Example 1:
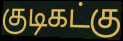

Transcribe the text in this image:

குடிகட்கு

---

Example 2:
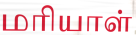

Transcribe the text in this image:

மரியாள்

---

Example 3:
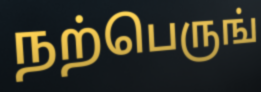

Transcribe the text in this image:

நற்பெருங்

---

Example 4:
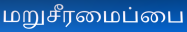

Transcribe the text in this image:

மறுசீரமைப்பை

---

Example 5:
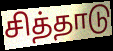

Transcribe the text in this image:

சித்தாடு